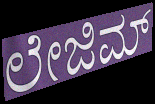
ಲೇಜಿಮ್